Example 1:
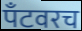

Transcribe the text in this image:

पँटवरच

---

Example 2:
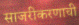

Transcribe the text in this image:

साजरीकरणाची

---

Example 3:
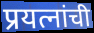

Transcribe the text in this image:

प्रयत्नांची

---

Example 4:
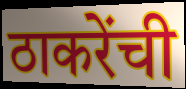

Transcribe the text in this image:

ठाकरेंची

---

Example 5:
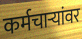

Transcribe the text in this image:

कर्मचाऱ्यांवर